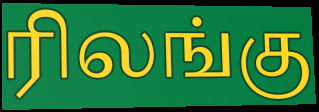
ரிலங்கு